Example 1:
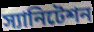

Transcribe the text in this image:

স্যানিটেশন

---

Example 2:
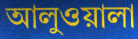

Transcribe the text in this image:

আলুওয়ালা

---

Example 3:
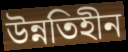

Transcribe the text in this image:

উন্নতিহীন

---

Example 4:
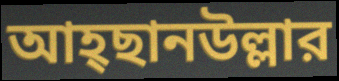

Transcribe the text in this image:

আহ্ছানউল্লার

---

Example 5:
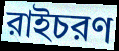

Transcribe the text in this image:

রাইচরণ